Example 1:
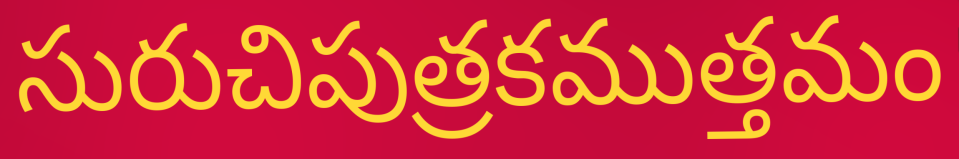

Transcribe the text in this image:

సురుచిపుత్రకముత్తమం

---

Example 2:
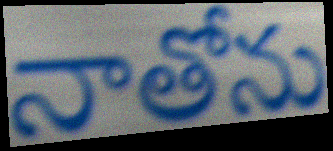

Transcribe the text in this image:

నాతోను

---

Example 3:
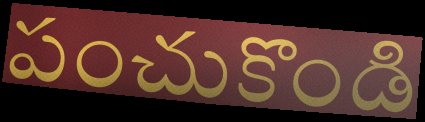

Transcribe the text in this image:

పంచుకొండి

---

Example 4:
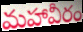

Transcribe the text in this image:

మహావీరం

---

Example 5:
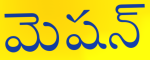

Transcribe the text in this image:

మెషన్